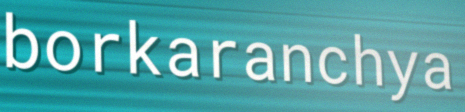
borkaranchya